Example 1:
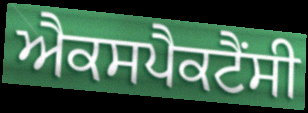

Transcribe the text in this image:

ਐਕਸਪੈਕਟੈਂਸੀ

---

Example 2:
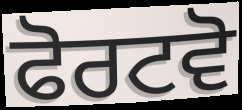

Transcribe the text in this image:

ਫੋਰਟਵੋ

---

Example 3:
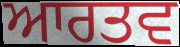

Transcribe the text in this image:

ਆਰਤਵ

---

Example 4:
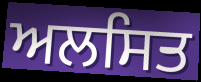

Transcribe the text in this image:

ਅਲਸਿਤ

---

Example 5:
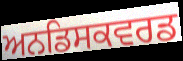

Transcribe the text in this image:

ਅਨਡਿਸਕਵਰਡ